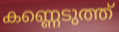
കണ്ണെടുത്ത്